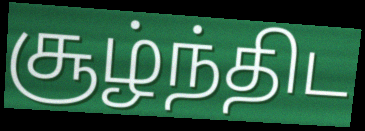
சூழ்ந்திட